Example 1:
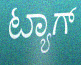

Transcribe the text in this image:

ಟ್ಯಾಗ್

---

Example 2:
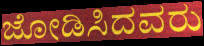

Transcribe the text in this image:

ಜೋಡಿಸಿದವರು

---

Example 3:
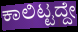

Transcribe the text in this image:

ಕಾಲಿಟ್ಟದ್ದೇ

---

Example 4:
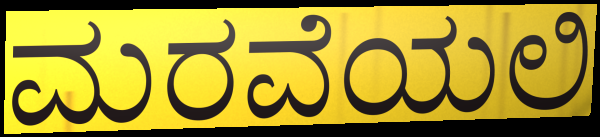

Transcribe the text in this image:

ಮರವೆಯಲಿ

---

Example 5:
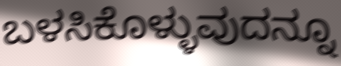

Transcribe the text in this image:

ಬಳಸಿಕೊಳ್ಳುವುದನ್ನೂ